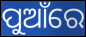
ପୁଆଁରେ